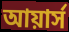
আয়ার্স